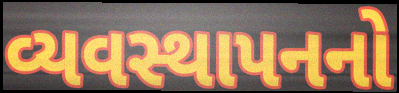
વ્યવસ્થાપનનો